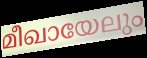
മീഖായേലും